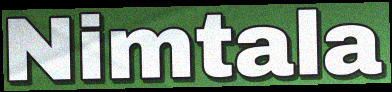
Nimtala